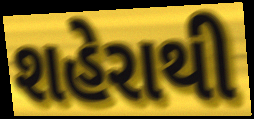
શહેરાથી